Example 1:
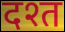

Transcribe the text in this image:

दश्त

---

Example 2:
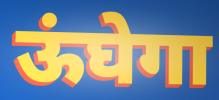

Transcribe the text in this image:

ऊंघेगा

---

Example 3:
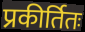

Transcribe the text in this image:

प्रकीर्तितः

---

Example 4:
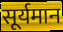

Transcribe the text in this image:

सूर्यमान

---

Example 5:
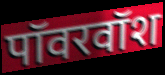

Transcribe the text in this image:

पॉवरवॉश